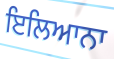
ਇਲਿਆਨਾ